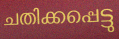
ചതിക്കപ്പെട്ടു